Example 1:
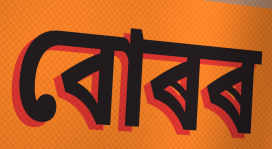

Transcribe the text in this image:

বোৰৰ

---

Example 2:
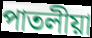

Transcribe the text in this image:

পাতলীয়া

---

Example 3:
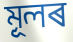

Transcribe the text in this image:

মূলৰ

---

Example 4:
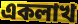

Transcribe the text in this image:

একলাখ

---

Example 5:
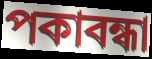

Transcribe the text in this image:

পকাবন্ধা